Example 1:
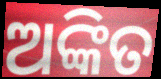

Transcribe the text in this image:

ଅଙ୍କିତ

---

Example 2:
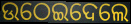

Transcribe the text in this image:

ଉଠେଇଦେଲେ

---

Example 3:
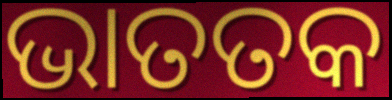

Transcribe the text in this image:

ଭାତତକ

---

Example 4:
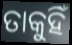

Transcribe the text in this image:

ତାକୁହିଁ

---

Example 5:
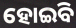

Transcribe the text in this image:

ହୋଇିବ